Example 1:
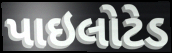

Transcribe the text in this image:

પાઇલોટેડ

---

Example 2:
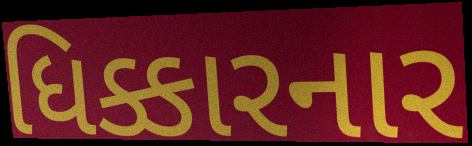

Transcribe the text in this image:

ધિક્કારનાર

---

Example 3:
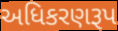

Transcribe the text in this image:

અધિકરણરૂપ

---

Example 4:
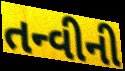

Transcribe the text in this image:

તન્વીની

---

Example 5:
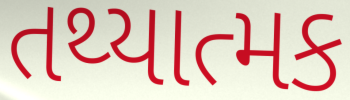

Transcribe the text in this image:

તથ્યાત્મક